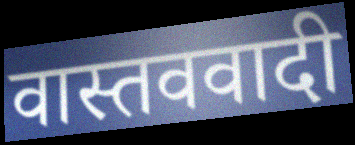
वास्तववादी